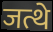
जत्थे